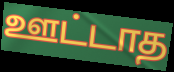
ஊட்டாத